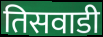
तिसवाडी